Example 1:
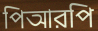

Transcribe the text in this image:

পিআরপি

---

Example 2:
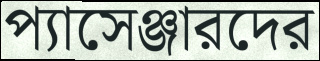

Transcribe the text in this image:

প্যাসেঞ্জারদের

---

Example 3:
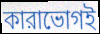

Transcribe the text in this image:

কারাভোগই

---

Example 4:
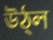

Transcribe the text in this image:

উঠ্ল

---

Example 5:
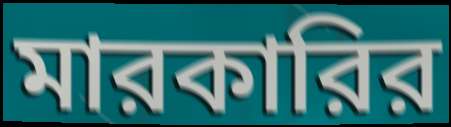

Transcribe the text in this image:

মারকারির